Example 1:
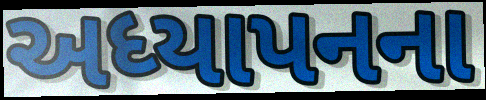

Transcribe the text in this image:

અધ્યાપનના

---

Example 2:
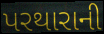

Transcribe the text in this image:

પરથારાની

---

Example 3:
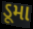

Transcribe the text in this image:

ડૂમા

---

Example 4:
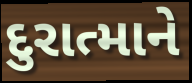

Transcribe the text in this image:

દુરાત્માને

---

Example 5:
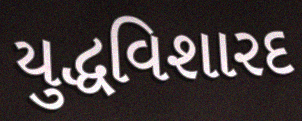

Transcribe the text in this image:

યુદ્ધવિશારદ